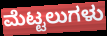
ಮೆಟ್ಟಲುಗಳು